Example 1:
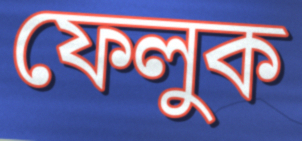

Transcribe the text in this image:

ফেলুক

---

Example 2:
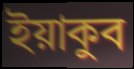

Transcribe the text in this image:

ইয়াকুব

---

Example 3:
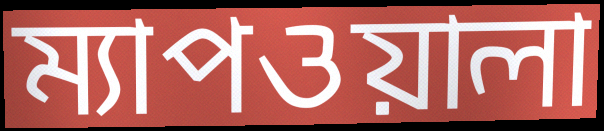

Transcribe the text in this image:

ম্যাপওয়ালা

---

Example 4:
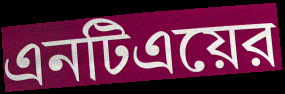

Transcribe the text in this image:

এনটিএয়ের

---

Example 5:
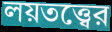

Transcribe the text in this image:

লয়তত্ত্বের